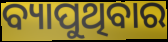
ବ୍ୟାପୁଥିବାର